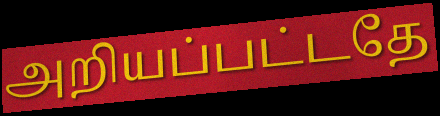
அறியப்பட்டதே